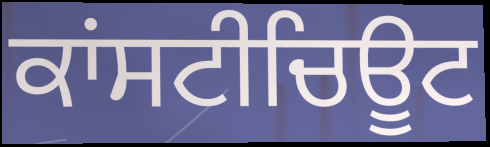
ਕਾਂਸਟੀਚਿਊਟ